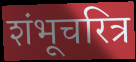
शंभूचरित्र